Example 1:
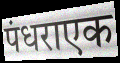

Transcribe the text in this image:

पंधराएक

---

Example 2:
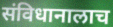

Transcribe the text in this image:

संविधानालाच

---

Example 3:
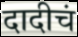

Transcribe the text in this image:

दादीचं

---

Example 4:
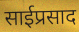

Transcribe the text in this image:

साईप्रसाद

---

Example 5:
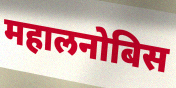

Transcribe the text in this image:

महालनोबिस